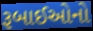
રૂબાઈઓનો